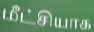
மீட்சியாக